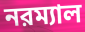
নরম্যাল